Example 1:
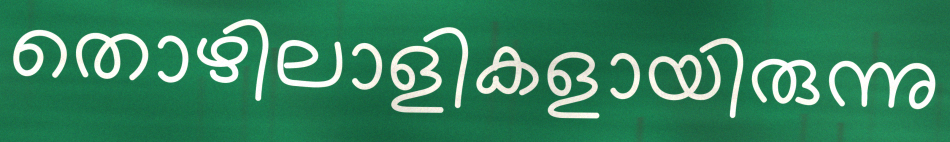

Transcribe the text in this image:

തൊഴിലാളികളായിരുന്നു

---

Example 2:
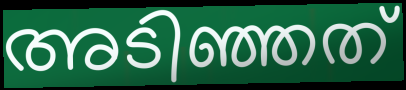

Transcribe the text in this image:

അടിഞ്ഞത്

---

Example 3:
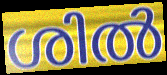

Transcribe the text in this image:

ശിൽ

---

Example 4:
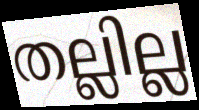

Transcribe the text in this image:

തല്ലില്ല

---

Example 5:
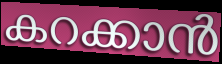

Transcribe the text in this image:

കറക്കാൻ